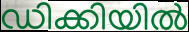
ഡിക്കിയിൽ